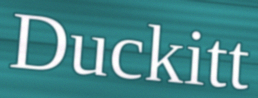
Duckitt